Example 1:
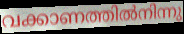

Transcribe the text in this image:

വക്കാണത്തിൽനിന്നു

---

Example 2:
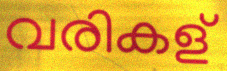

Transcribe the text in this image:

വരികള്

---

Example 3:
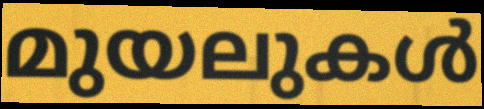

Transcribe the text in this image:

മുയലുകൾ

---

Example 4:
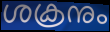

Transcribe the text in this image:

ശക്രനും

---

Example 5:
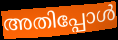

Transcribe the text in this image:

അതിപ്പോൾ